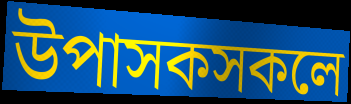
উপাসকসকলে